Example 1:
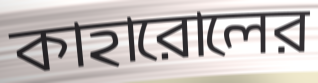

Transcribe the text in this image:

কাহারোলের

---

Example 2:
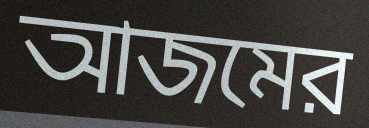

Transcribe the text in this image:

আজমের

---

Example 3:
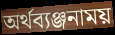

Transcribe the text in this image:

অর্থব্যঞ্জনাময়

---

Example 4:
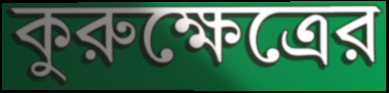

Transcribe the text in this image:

কুরুক্ষেত্রের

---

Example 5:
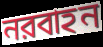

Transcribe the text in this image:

নরবাহন